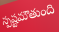
స్పష్టమౌతుంది